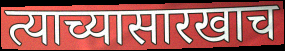
त्याच्यासारखाच